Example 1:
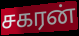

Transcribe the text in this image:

சகரன்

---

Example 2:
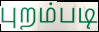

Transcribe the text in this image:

புறம்படி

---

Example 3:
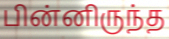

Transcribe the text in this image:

பின்னிருந்த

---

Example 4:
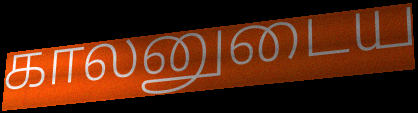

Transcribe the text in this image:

காலனுடைய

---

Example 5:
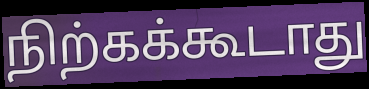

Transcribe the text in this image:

நிற்கக்கூடாது